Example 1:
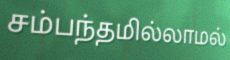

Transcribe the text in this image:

சம்பந்தமில்லாமல்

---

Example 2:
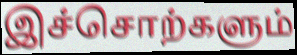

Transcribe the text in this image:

இச்சொற்களும்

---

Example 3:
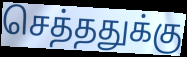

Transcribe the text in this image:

செத்ததுக்கு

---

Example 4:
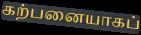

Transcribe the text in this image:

கற்பனையாகப்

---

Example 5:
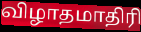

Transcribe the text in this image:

விழாதமாதிரி